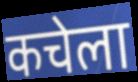
कचेला